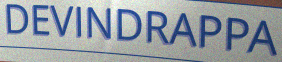
DEVINDRAPPA